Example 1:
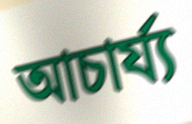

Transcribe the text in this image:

আচাৰ্য্য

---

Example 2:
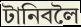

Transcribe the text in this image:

টানিবলৈ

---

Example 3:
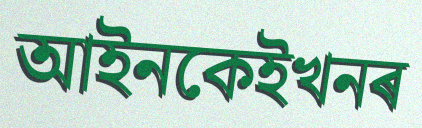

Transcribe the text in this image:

আইনকেইখনৰ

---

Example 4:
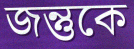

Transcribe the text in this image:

জন্তুকে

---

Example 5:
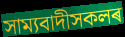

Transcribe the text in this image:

সাম্যবাদীসকলৰ